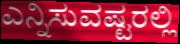
ಎನ್ನಿಸುವಷ್ಟರಲ್ಲಿ